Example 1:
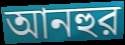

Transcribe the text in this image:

আনহুর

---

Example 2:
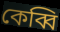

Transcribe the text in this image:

কেব্বি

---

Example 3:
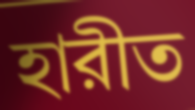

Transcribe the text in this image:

হারীত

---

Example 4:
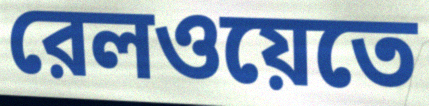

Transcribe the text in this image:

রেলওয়েতে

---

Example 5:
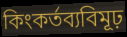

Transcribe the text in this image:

কিংকর্তব্যবিমূঢ়